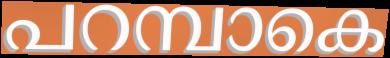
പറമ്പാകെ